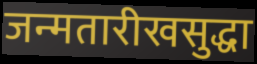
जन्मतारीखसुद्धा